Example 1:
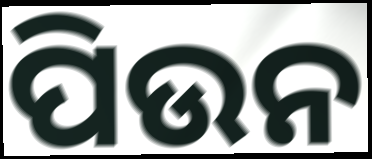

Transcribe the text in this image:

ପିଉନ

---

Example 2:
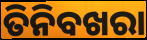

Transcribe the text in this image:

ତିନିବଖରା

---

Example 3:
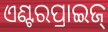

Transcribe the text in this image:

ଏଣ୍ଟରପ୍ରାଇଜ୍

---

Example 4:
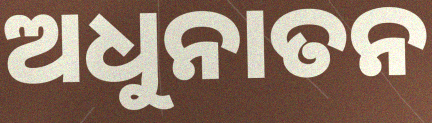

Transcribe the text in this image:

ଅଧୁନାତନ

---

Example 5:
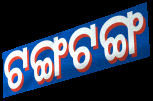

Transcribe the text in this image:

ଟଙ୍ଗଟଙ୍ଗ